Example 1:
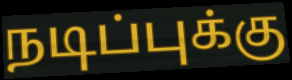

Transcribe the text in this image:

நடிப்புக்கு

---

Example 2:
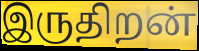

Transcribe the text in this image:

இருதிறன்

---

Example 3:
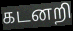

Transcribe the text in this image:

கடனறி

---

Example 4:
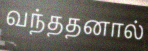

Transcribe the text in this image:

வந்ததனால்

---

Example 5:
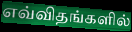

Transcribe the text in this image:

எவ்விதங்களில்